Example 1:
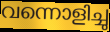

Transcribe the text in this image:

വന്നൊളിച്ചു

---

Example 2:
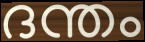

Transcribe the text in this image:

ദന്തം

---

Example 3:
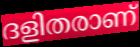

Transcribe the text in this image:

ദളിതരാണ്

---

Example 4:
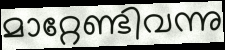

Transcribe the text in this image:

മാറ്റേണ്ടിവന്നു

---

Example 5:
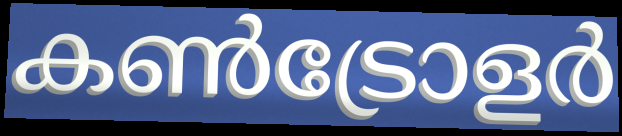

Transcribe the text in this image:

കൺട്രോളർ